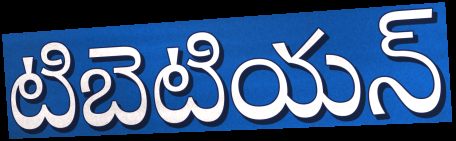
టిబెటియన్